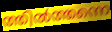
ത്തിൽത്തന്നെ